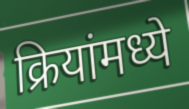
क्रियांमध्ये